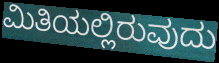
ಮಿತಿಯಲ್ಲಿರುವುದು